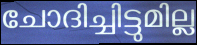
ചോദിച്ചിട്ടുമില്ല